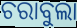
ଚରାବୁଲା